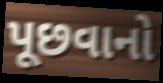
પૂછવાનો